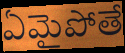
ఏమైపోతే